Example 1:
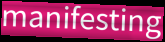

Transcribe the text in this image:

manifesting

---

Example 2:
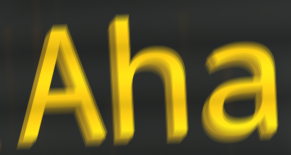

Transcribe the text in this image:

Aha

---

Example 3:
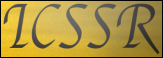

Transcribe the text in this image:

ICSSR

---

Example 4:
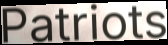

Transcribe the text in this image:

Patriots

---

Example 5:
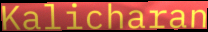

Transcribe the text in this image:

Kalicharan